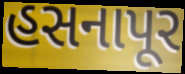
હસનાપૂર